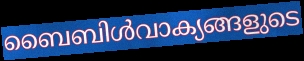
ബൈബിൾവാക്യങ്ങളുടെ